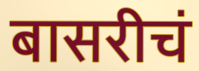
बासरीचं